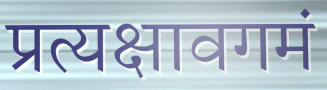
प्रत्यक्षावगमं